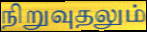
நிறுவுதலும்